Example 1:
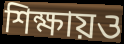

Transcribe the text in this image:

শিক্ষায়ও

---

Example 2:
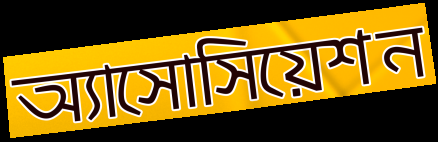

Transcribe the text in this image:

অ্যাসোসিয়েশন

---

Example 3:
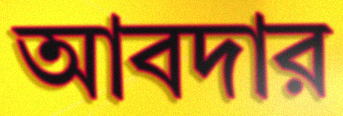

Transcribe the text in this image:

আবদার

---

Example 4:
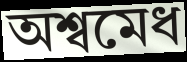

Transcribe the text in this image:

অশ্বমেধ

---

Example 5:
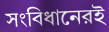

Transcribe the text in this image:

সংবিধানেরই